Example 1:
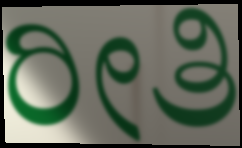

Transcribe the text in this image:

ರೀತಿ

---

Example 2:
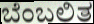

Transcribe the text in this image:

ಬೆಂಬಲಿತ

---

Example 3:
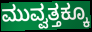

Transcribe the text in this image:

ಮುವ್ವತ್ತಕ್ಕೂ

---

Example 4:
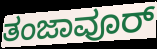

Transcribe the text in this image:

ತಂಜಾವೂರ್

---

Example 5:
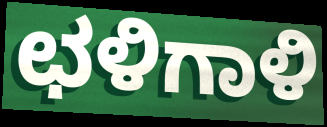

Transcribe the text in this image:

ಛಳಿಗಾಳಿ